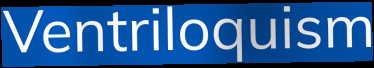
Ventriloquism